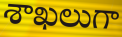
శాఖలుగా